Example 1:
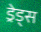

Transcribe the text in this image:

ड्रेड्स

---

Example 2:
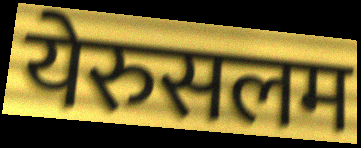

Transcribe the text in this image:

येरुसलम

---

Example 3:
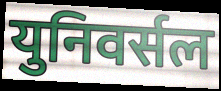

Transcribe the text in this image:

युनिवर्सल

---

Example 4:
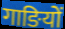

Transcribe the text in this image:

गाङियों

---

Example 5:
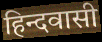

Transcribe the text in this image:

हिन्दवासी